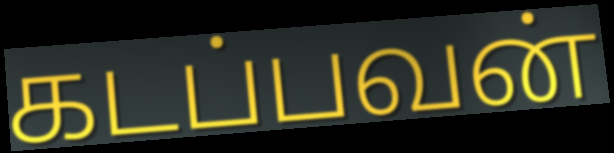
கடப்பவன்